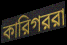
কারিগররা